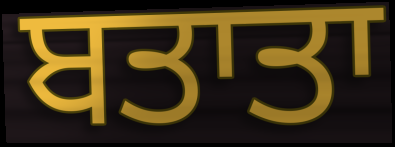
ਬਤਾਤਾ